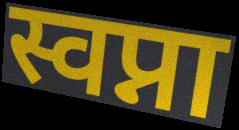
स्वप्ना